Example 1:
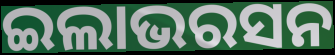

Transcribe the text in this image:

ଇଲାଭରସନ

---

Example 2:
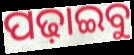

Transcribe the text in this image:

ପଢ଼ାଇବୁ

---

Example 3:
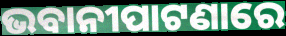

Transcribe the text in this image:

ଭବାନୀପାଟଣାରେ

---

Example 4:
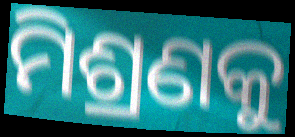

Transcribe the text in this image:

ମିଶ୍ରଣକୁ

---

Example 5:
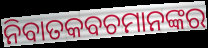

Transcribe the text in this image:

ନିବାତକବଚମାନଙ୍କର